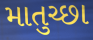
માતુચ્છા